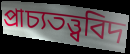
প্রাচ্যতত্ত্ববিদ